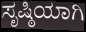
ಸೃಷ್ಠಿಯಾಗಿ